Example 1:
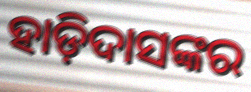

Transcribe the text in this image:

ହାଡ଼ିଦାସଙ୍କର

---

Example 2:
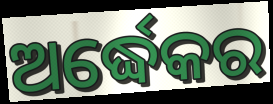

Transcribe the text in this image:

ଅର୍ଦ୍ଧେକର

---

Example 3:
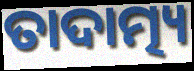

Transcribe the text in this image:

ତାଦାତ୍ମ୍ୟ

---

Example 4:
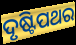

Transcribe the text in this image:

ଦୃଷ୍ଟିପଥର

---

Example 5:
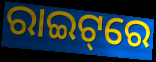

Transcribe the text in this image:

ରାଇଟ୍‌ରେ